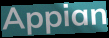
Appian